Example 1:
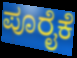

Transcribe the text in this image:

ಪೂರೈಕೆ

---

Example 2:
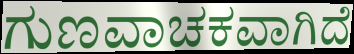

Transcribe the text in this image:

ಗುಣವಾಚಕವಾಗಿದೆ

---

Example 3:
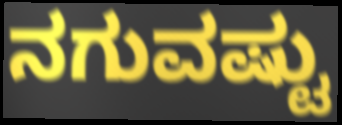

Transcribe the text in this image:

ನಗುವಷ್ಟು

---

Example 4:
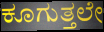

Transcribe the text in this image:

ಕೂಗುತ್ತಲೇ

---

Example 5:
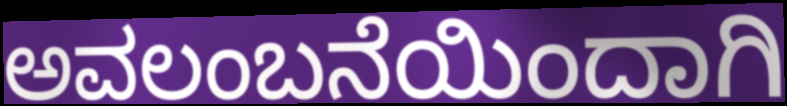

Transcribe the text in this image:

ಅವಲಂಬನೆಯಿಂದಾಗಿ